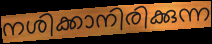
നശിക്കാനിരിക്കുന്ന